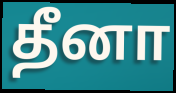
தீனா